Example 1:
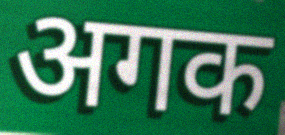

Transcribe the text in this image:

अगक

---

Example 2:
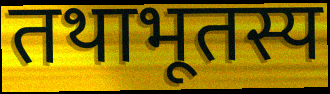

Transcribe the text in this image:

तथाभूतस्य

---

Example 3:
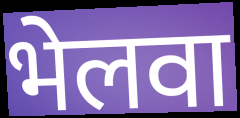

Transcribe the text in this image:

भेलवा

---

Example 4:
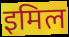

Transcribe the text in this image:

इमिल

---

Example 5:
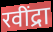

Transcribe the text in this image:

रवींद्रा